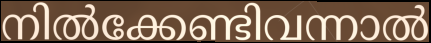
നിൽക്കേണ്ടിവന്നാൽ